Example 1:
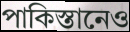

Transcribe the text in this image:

পাকিস্তানেও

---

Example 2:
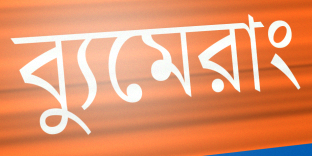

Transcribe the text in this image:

ব্যুমেরাং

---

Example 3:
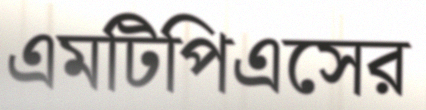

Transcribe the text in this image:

এমটিপিএসের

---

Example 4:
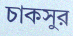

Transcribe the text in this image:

চাকসুর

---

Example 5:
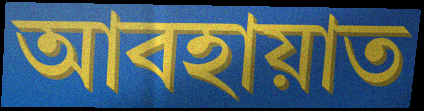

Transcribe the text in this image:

আবহায়াত